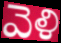
వెళి